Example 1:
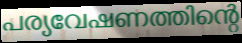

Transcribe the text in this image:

പര്യവേഷണത്തിന്റെ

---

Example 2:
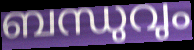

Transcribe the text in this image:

ബന്ധുവും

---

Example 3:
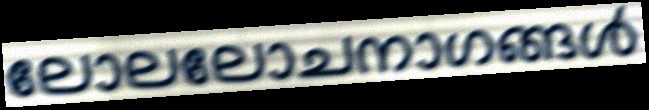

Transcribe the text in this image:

ലോലലോചനാഗങ്ങൾ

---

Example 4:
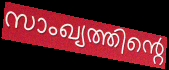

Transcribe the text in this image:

സാംഖ്യത്തിന്റെ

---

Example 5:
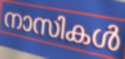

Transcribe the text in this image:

നാസികൾ